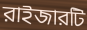
রাইজারটি